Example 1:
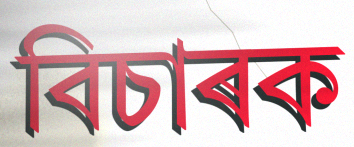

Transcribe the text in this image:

বিচাৰক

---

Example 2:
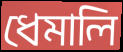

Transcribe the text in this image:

ধেমালি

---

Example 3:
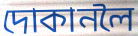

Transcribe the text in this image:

দোকানলৈ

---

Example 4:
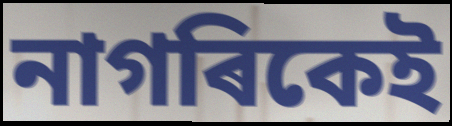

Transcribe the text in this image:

নাগৰিকেই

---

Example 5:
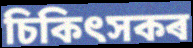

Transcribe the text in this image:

চিকিৎসকৰ